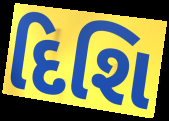
દિશિ